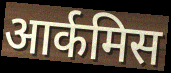
आर्कमिस